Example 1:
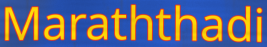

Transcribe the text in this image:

Maraththadi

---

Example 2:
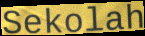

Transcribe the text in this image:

Sekolah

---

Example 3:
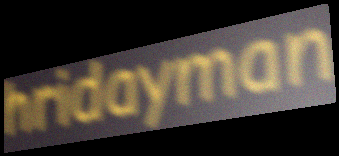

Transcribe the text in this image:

hridayman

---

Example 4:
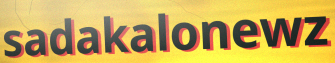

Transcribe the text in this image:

sadakalonewz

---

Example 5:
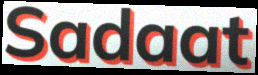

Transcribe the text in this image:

Sadaat